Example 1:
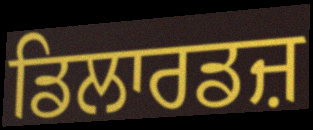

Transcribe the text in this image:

ਡਿਲਾਰਡਜ਼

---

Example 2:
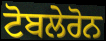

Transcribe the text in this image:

ਟੋਬਲੇਰੋਨ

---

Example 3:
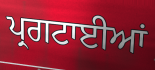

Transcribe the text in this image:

ਪ੍ਰਗਟਾਈਆਂ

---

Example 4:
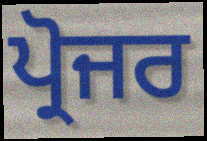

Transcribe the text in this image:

ਪ੍ਰੋਜਰ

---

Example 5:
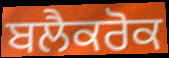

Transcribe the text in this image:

ਬਲੈਕਰੋਕ